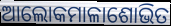
ଆଲୋକମାଳାଶୋଭିତ